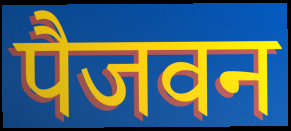
पैजवन